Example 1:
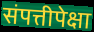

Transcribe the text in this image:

संपत्तीपेक्षा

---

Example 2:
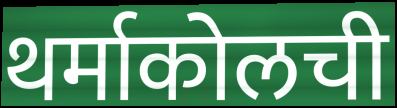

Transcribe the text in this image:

थर्माकोलची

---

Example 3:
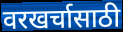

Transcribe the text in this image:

वरखर्चासाठी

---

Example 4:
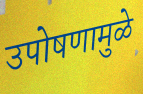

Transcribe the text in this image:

उपोषणामुळे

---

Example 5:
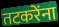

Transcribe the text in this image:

तटकरेंना